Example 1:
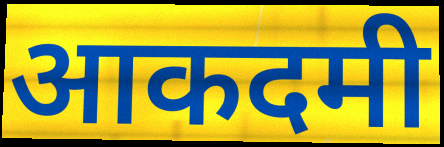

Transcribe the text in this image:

आकदमी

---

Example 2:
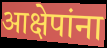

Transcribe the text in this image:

आक्षेपांना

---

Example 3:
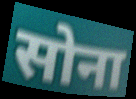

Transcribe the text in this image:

सोना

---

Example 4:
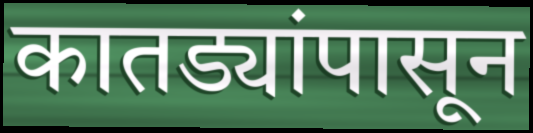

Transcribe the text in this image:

कातड्यांपासून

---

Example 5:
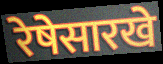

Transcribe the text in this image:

रेषेसारखे